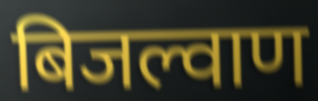
बिजल्वाण